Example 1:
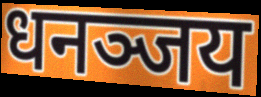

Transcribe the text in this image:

धनञ्जय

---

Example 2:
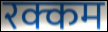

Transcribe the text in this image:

रक्कम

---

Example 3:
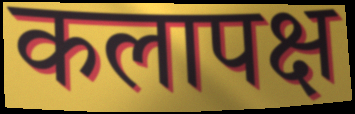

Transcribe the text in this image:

कलापक्ष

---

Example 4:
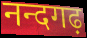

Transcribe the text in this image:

नन्दगढ़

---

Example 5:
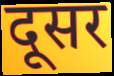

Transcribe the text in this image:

दूसर